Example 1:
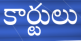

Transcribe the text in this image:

కార్టులు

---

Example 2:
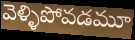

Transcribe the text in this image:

వెళ్ళిపోవడమూ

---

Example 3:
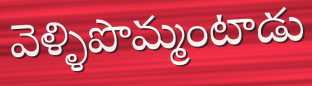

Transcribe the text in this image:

వెళ్ళిపొమ్మంటాడు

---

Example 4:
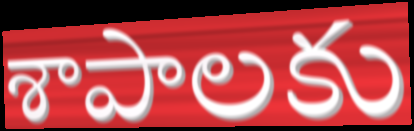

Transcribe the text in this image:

శాపాలకు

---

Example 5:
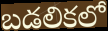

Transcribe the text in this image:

బడలికలో